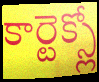
కార్టెక్స్లో